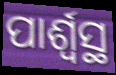
ପାର୍ଶ୍ବସ୍ଥ